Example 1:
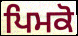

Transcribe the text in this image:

ਪਿਮਕੋ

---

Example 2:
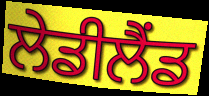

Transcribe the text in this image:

ਲੇਡੀਲੈਂਡ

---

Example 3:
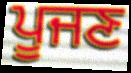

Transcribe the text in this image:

ਪੂਜਣ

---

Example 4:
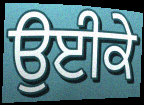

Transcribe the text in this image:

ਉਈਕੇ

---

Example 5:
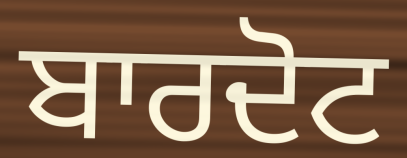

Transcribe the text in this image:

ਬਾਰਦੋਟ